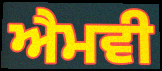
ਐਮਵੀ